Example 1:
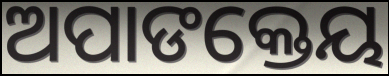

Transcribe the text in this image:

ଅପାଙକ୍ତେୟ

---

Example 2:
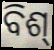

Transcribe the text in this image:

ବିଶ୍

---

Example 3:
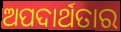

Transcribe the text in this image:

ଅପଦାର୍ଥତାର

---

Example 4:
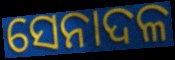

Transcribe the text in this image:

ସେନାଦଳ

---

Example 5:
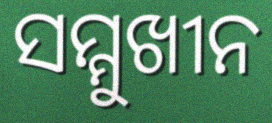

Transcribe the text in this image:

ସମ୍ମୁଖୀନ